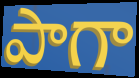
పాగా